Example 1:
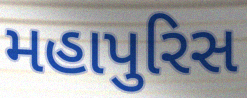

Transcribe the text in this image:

મહાપુરિસ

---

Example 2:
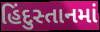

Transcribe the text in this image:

હિંદુસ્તાનમાં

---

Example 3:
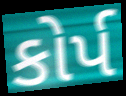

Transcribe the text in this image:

કોર્પ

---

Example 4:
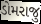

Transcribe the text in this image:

ડોમરાજુ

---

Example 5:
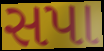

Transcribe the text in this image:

સપા